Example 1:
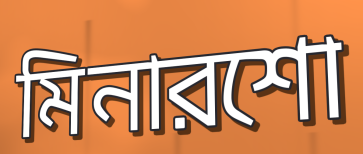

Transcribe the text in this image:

মিনারশো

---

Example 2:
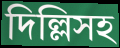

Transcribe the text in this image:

দিল্লিসহ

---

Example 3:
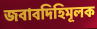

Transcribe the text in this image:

জবাবদিহিমূলক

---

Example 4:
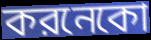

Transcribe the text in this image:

করনেকো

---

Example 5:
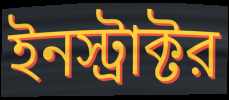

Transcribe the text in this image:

ইনস্ট্রাক্টর